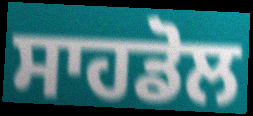
ਸਾਹਡੋਲ